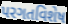
પરગતવિશેષ